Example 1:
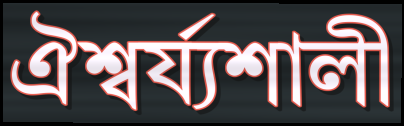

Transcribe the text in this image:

ঐশ্বর্য্যশালী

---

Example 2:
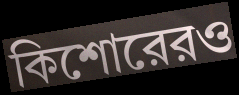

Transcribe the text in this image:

কিশোরেরও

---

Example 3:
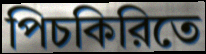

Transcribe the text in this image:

পিচকিরিতে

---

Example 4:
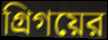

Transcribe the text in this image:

গ্রিগয়ের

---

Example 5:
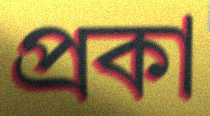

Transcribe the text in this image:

প্রকা